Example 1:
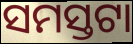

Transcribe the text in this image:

ସମସ୍ତଟା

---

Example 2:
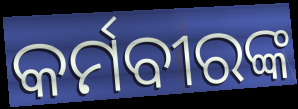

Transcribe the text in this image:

କର୍ମବୀରଙ୍କ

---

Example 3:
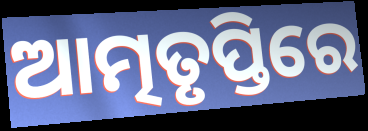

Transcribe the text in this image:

ଆତ୍ମତୃପ୍ତିରେ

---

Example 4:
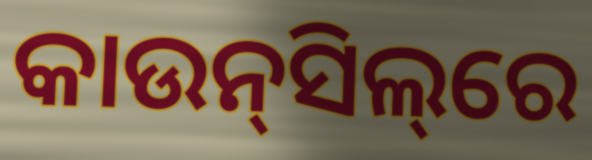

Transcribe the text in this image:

କାଉନ୍‌ସିଲ୍‌ରେ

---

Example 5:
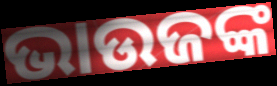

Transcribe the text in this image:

ଭାଉଜଙ୍କ